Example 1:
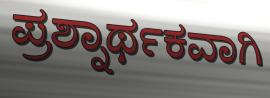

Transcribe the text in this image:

ಪ್ರಶ್ನಾರ್ಥಕವಾಗಿ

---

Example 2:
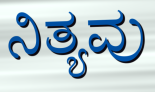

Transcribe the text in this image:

ನಿತ್ಯವು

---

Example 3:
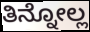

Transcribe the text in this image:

ತಿನ್ನೋಲ್ಲ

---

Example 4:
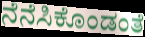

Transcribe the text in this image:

ನೆನೆಸಿಕೊಂಡಂತೆ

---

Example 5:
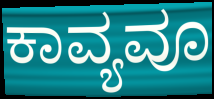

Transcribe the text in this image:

ಕಾವ್ಯವೂ